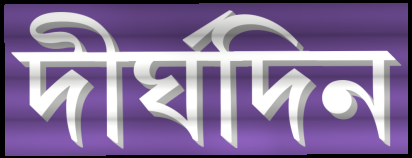
দীর্ঘদিন